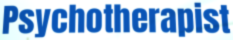
Psychotherapist